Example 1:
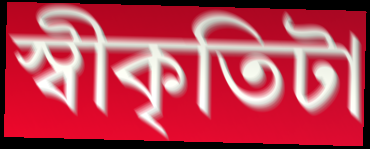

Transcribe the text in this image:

স্বীকৃতিটা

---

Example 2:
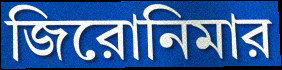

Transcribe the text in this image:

জিরোনিমার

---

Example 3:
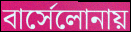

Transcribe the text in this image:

বার্সেলোনায়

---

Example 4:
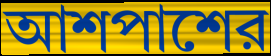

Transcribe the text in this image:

আশপাশের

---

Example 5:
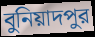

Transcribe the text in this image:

বুনিয়াদপুর